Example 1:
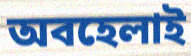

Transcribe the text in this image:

অবহেলাই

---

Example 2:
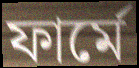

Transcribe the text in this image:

ফার্মে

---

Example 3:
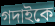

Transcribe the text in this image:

গদাইকে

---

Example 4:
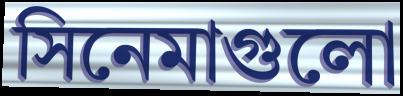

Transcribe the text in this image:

সিনেমাগুলো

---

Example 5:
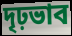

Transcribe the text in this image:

দৃঢ়ভাব